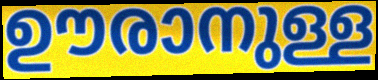
ഊരാനുള്ള